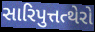
સારિપુત્તત્થેરો